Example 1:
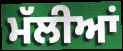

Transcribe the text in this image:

ਮੱਲੀਆਂ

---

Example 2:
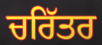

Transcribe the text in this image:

ਚਰਿੱਤਰ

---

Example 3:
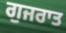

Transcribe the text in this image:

ਗੁਜਰਾਤ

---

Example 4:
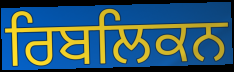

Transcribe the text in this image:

ਰਿਬਲਿਕਨ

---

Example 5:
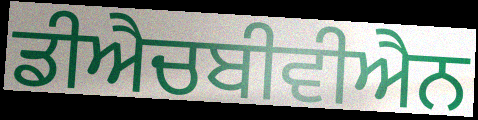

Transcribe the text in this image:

ਡੀਐਚਬੀਵੀਐਨ